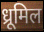
ध्रूमिल